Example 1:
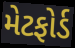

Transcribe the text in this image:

મેટફોર્ડ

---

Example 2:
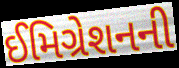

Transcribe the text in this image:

ઈમિગ્રેશનની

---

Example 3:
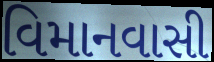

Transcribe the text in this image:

વિમાનવાસી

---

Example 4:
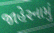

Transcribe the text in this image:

જાહેરનામું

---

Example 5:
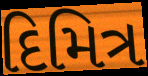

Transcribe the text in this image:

દિમિત્ર